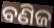
ବଣିଜ